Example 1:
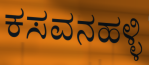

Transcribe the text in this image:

ಕಸವನಹಳ್ಳಿ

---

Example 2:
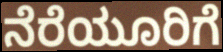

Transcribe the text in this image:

ನೆರೆಯೂರಿಗೆ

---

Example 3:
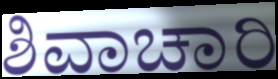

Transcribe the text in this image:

ಶಿವಾಚಾರಿ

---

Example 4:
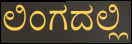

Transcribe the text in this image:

ಲಿಂಗದಲ್ಲಿ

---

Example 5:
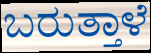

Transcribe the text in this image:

ಬರುತ್ತಾಳೆ